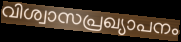
വിശ്വാസപ്രഖ്യാപനം